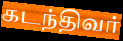
கடந்திவர்